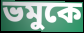
ভমুকে